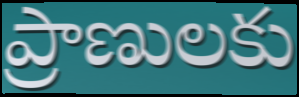
ప్రాణులకు